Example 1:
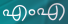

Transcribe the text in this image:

എംഎ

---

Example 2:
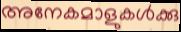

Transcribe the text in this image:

അനേകമാളുകൾക്കു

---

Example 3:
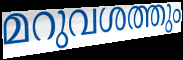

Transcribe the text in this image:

മറുവശത്തും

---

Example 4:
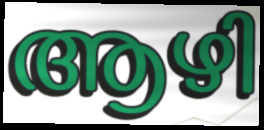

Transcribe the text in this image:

ആഴി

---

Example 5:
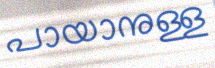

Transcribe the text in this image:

പായാനുള്ള